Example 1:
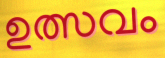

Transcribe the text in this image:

ഉത്സവം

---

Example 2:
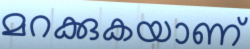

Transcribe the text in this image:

മറക്കുകയാണ്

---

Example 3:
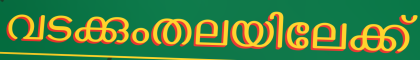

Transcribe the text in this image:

വടക്കുംതലയിലേക്ക്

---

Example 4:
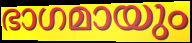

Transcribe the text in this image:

ഭാഗമായും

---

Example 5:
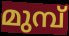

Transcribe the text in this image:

മുമ്പ്